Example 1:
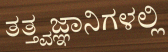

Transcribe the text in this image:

ತತ್ತ್ವಜ್ಞಾನಿಗಳಲ್ಲಿ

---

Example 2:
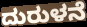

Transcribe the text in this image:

ದುರುಳನೆ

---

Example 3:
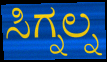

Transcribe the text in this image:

ಸಿಗ್ನಲ್ನ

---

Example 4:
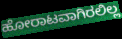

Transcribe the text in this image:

ಹೋರಾಟವಾಗಿರಲಿಲ್ಲ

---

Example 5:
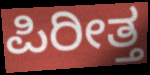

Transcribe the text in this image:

ಪಿರೀತ್ತ